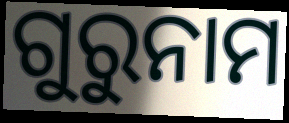
ଗୁରୁନାମ